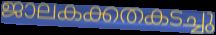
ജാലകക്കതകടച്ചു